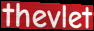
thevlet